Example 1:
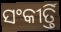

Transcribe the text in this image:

ସଂକୀର୍ତ୍ତି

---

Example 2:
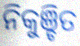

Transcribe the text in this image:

ନିକୁଞ୍ଚିତ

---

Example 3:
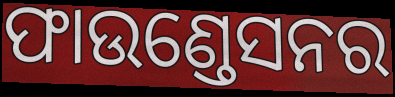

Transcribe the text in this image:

ଫାଉଣ୍ଡେସନର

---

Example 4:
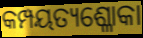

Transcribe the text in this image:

କମ୍ପୟତ୍ୟଶ୍ଳୋକା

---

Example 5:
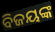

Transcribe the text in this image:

ବିଜୟଙ୍କ